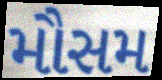
મૌસમ